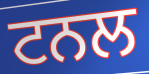
ਟਨਲ